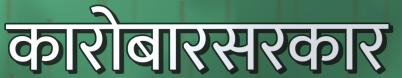
कारोबारसरकार